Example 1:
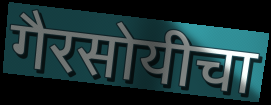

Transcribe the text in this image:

गैरसोयीचा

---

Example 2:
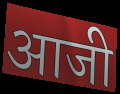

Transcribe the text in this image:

आजी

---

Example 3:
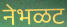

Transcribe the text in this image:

नेभळट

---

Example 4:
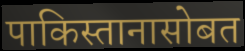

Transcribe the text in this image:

पाकिस्तानासोबत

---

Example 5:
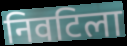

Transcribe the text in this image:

निवटिला